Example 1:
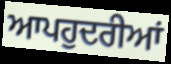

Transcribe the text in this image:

ਆਪਹੁਦਰੀਆਂ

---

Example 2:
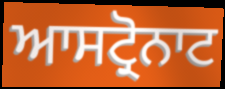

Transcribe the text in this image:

ਆਸਟ੍ਰੋਨਾਟ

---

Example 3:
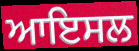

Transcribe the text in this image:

ਆਇਸਲ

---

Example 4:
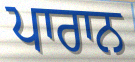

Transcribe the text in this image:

ਪਾਰਾਨ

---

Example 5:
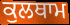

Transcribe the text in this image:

ਕੁਲਥਾਮ